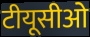
टीयूसीओ